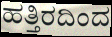
ಹತ್ತಿರದಿಂದ